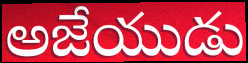
అజేయుడు